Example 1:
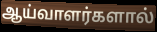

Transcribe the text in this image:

ஆய்வாளர்களால்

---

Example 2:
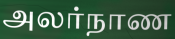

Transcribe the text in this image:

அலர்நாண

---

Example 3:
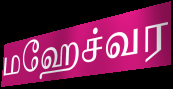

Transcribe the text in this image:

மஹேச்வர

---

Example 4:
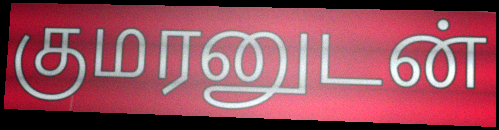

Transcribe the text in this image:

குமரனுடன்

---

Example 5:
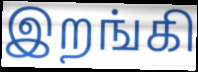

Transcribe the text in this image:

இறங்கி